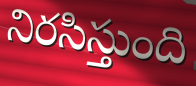
నిరసిస్తుంది